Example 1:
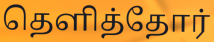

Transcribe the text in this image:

தெளித்தோர்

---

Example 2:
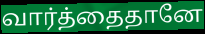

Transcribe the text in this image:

வார்த்தைதானே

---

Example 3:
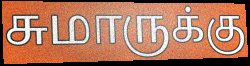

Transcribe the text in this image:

சுமாருக்கு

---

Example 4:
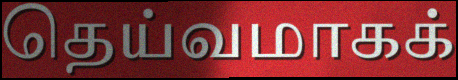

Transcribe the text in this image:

தெய்வமாகக்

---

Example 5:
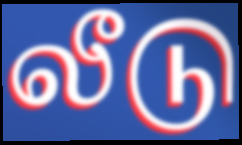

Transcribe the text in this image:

லீடு